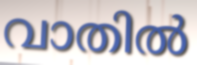
വാതിൽ